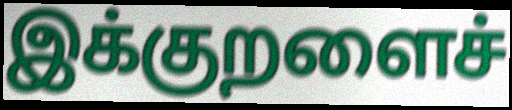
இக்குறளைச்